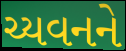
ચ્યવનને